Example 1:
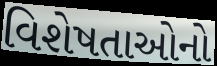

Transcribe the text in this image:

વિશેષતાઓનો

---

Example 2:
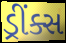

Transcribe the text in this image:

ડ્રીંક્સ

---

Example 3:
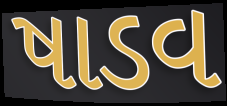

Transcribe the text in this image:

ષાડવ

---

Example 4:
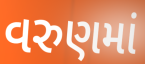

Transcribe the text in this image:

વરુણમાં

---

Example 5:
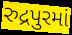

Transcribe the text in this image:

રુદ્રપુરમાં